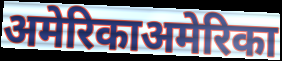
अमेरिकाअमेरिका